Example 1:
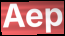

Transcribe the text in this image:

Aep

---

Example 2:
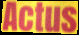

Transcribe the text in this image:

Actus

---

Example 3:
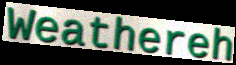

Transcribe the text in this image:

Weathereh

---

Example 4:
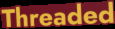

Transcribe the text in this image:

Threaded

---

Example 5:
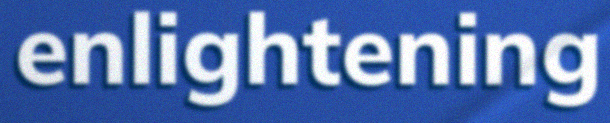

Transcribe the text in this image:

enlightening